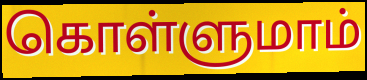
கொள்ளுமாம்